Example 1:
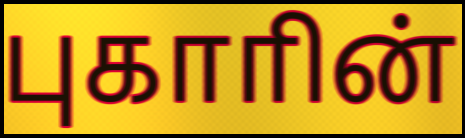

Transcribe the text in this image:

புகாரின்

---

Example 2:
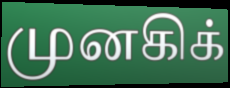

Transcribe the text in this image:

முனகிக்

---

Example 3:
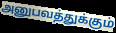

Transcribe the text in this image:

அனுபவத்துக்கும்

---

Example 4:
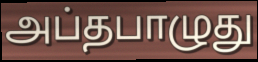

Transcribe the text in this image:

அப்தபாழுது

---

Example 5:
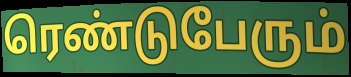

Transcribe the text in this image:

ரெண்டுபேரும்